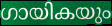
ഗായികയും